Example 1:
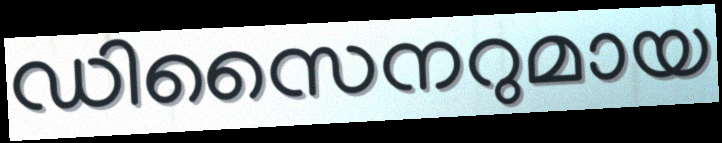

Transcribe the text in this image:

ഡിസൈനറുമായ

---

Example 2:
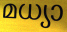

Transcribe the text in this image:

മധ്യാ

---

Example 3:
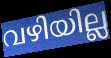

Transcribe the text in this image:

വഴിയില്ല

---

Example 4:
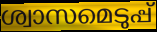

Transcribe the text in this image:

ശ്വാസമെടുപ്പ്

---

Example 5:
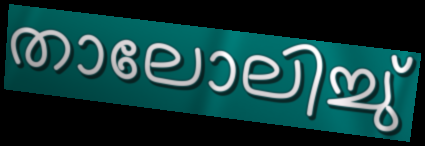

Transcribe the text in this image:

താലോലിച്ചു്